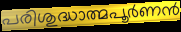
പരിശുദ്ധാത്മപൂർണൻ